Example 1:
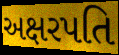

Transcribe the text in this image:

અક્ષરપતિ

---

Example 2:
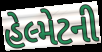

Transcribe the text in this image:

હેલ્મેટની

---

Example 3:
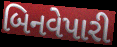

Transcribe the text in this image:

બિનવેપારી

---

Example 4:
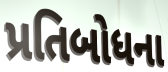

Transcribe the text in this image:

પ્રતિબોધના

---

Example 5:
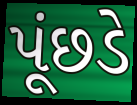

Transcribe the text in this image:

પૂંછડે